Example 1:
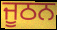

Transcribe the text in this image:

ਜੂਠਨ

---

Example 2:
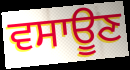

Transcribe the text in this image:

ਵਸਾਊਣ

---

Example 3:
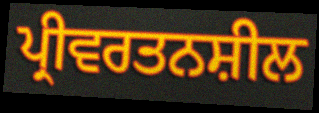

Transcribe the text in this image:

ਪ੍ਰੀਵਰਤਨਸ਼ੀਲ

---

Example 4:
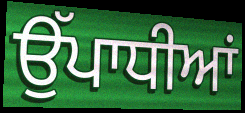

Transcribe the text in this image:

ਉੱਪਾਧੀਆਂ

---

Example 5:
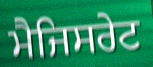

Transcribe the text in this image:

ਮੈਜਿਸਰੇਟ